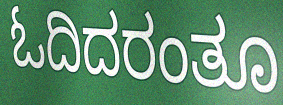
ಓದಿದರಂತೂ